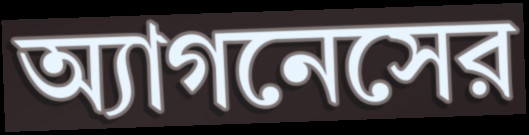
অ্যাগনেসের